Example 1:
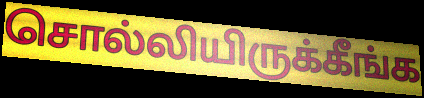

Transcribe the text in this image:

சொல்லியிருக்கீங்க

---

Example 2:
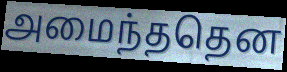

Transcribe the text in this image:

அமைந்ததென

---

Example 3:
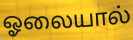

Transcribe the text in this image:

ஓலையால்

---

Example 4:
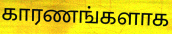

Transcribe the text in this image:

காரணங்களாக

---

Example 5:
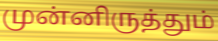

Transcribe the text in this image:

முன்னிருத்தும்